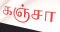
கஞ்சா